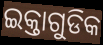
ଇକ୍ତାଗୁଡିକ